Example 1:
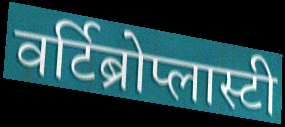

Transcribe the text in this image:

वर्टिब्रोप्लास्टी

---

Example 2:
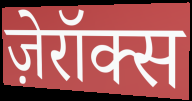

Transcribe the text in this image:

ज़ेरॉक्स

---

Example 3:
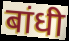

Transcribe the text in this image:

बांधी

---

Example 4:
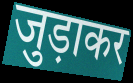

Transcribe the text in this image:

जुड़ाकर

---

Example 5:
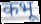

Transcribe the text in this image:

कभू